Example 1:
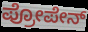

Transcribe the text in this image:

ಪ್ರೋಪೇನ್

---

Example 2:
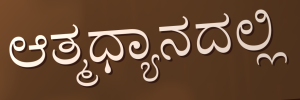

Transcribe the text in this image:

ಆತ್ಮಧ್ಯಾನದಲ್ಲಿ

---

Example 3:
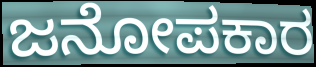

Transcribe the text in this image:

ಜನೋಪಕಾರ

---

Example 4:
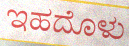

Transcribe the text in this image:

ಇಹದೊಳು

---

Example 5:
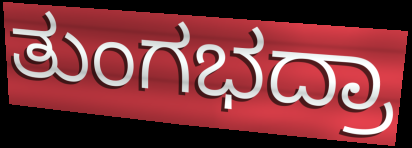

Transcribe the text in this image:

ತುಂಗಭದ್ರಾ